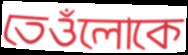
তেওঁলোকে